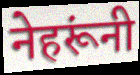
नेहरूंनी